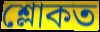
শ্লোকত